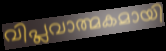
വിപ്ലവാത്മകമായി